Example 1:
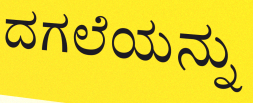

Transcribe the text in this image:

ದಗಲೆಯನ್ನು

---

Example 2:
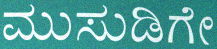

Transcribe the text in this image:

ಮುಸುಡಿಗೇ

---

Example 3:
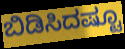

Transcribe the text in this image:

ಬಿಡಿಸಿದಷ್ಟೂ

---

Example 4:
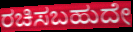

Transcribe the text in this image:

ರಚಿಸಬಹುದೇ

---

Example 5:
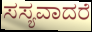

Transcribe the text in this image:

ಸಸ್ಯವಾದರೆ